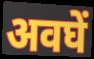
अवघें